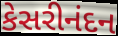
કેસરીનંદન